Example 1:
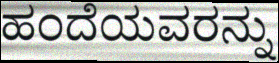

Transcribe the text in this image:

ಹಂದೆಯವರನ್ನು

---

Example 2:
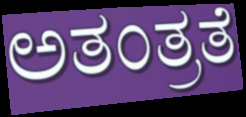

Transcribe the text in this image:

ಅತಂತ್ರತೆ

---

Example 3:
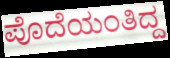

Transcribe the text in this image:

ಪೊದೆಯಂತಿದ್ದ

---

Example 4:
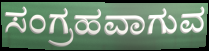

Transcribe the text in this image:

ಸಂಗ್ರಹವಾಗುವ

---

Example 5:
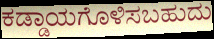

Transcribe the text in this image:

ಕಡ್ಡಾಯಗೊಳಿಸಬಹುದು